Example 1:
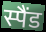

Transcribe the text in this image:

स्पैंड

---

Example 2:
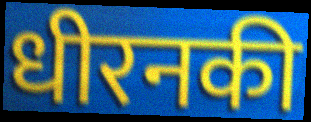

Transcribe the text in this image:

धीरनकी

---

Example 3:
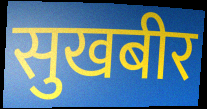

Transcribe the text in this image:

सुखबीर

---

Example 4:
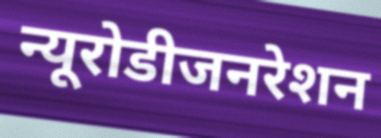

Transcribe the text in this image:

न्यूरोडीजनरेशन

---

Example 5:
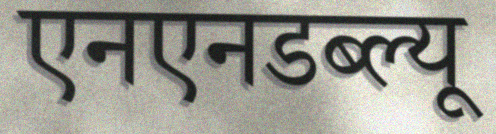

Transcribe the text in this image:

एनएनडब्ल्यू